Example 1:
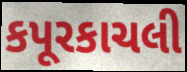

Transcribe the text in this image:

કપૂરકાચલી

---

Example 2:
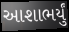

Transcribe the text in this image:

આશાભર્યું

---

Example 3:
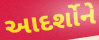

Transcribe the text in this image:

આદર્શોને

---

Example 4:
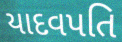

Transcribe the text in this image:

યાદવપતિ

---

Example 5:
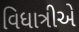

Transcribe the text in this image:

વિધાત્રીએ